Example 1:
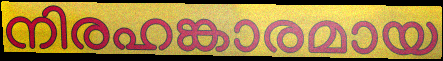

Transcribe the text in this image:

നിരഹങ്കാരമായ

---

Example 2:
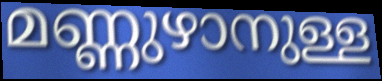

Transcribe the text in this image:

മണ്ണുഴാനുള്ള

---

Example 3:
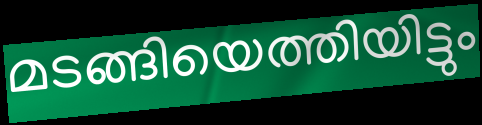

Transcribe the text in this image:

മടങ്ങിയെത്തിയിട്ടും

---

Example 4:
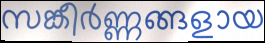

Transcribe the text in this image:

സങ്കീർണ്ണങ്ങളായ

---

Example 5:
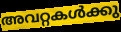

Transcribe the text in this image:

അവറ്റകൾക്കു